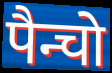
पैन्चो